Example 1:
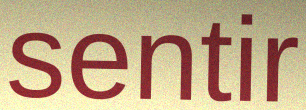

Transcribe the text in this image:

sentir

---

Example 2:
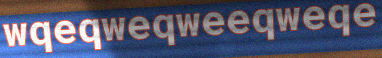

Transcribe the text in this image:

wqeqweqweeqweqe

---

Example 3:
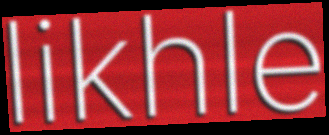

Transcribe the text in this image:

likhle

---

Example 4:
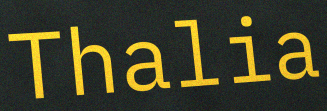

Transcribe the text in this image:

Thalia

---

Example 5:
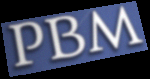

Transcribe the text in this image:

PBM